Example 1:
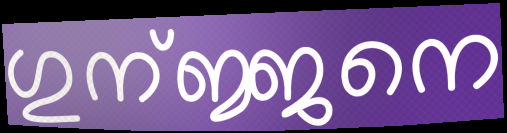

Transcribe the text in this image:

ഗുന്ജ്ജനെ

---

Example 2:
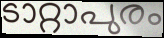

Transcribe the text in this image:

ടാറ്റാപുരം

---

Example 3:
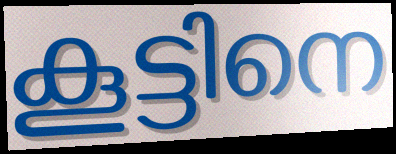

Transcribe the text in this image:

കൂട്ടിനെ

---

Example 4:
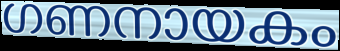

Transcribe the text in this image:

ഗണനായകം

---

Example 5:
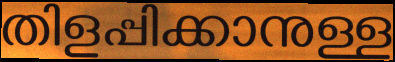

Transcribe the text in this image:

തിളപ്പിക്കാനുള്ള